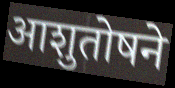
आशुतोषने